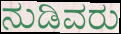
ನುಡಿವರು